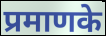
प्रमाणके